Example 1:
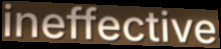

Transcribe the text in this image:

ineffective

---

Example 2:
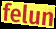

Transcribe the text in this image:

felun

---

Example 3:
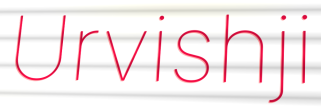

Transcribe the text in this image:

Urvishji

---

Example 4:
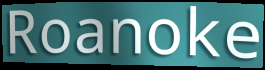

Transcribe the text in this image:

Roanoke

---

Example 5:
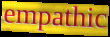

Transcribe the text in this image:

empathic